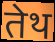
तेथ